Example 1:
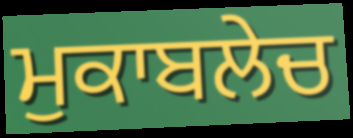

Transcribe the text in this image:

ਮੁਕਾਬਲੇਚ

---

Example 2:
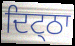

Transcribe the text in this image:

ਦਿਟ੍ਠਾ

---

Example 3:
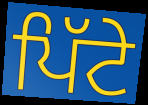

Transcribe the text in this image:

ਪਿੱਟੇ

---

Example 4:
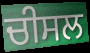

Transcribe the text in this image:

ਚੀਸਲ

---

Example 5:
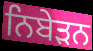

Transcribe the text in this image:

ਨਿਬੇੜਨ